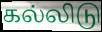
கல்லிடு